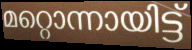
മറ്റൊന്നായിട്ട്